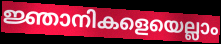
ജ്ഞാനികളെയെല്ലാം